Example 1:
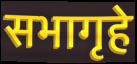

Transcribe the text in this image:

सभागृहे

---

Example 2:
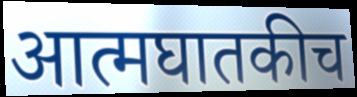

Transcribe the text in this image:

आत्मघातकीच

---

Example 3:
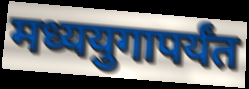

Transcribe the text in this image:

मध्ययुगापर्यंत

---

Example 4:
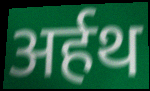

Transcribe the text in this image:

अर्हथ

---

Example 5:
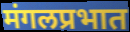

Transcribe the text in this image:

मंगलप्रभात